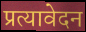
प्रत्यावेदन